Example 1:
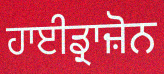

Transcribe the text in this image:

ਹਾਈਡ੍ਰਾਜ਼ੋਨ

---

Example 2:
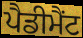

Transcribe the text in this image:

ਪੈਡੀਮੈਂਟ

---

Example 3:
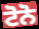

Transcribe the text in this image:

ਟੋਨੋ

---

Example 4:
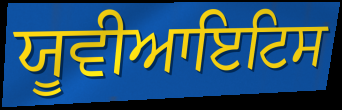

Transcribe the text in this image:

ਯੂਵੀਆਇਟਿਸ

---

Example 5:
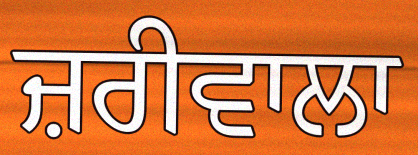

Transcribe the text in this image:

ਜ਼ਰੀਵਾਲਾ